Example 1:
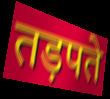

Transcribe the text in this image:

तड़पते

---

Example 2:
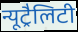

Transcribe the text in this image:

न्यूट्रैलिटी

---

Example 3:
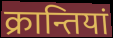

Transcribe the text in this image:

क्रान्तियां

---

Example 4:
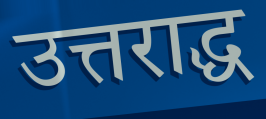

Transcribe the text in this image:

उत्तराद्ध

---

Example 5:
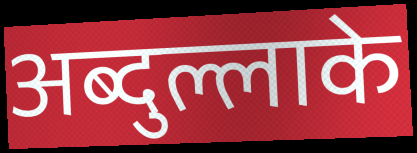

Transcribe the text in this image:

अब्दुल्लाके